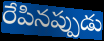
రేపినప్పుడు